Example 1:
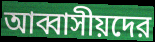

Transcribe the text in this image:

আব্বাসীয়দের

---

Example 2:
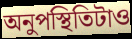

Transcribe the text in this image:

অনুপস্থিতিটাও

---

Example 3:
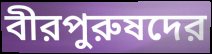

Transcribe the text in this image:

বীরপুরুষদের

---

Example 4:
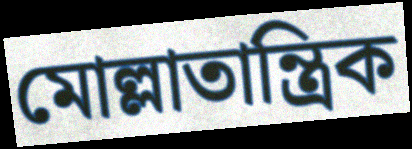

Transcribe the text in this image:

মোল্লাতান্ত্রিক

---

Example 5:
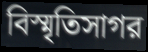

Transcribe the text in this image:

বিস্মৃতিসাগর